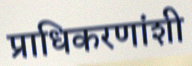
प्राधिकरणांशी